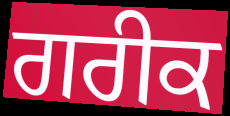
ਗਰੀਕ